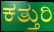
ಕತ್ತುರಿ